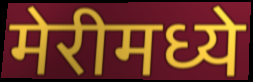
मेरीमध्ये